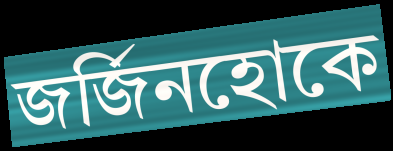
জর্জিনহোকে